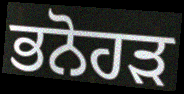
ਭਨੋਹੜ